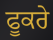
ਫੂਕਰੇ